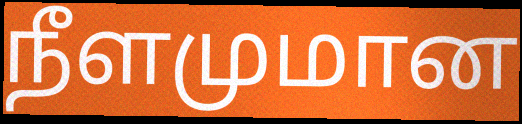
நீளமுமான